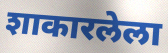
शाकारलेला